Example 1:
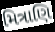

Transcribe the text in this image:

મિત્રાણિ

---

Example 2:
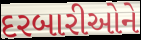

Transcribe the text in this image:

દરબારીઓને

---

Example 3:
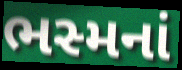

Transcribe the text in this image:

ભસ્મનાં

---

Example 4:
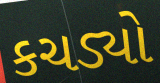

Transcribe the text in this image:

કચડ્યો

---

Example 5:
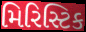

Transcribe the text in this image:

મિરિસ્ટિક